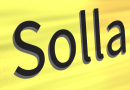
Solla